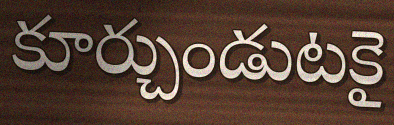
కూర్చుండుటకై